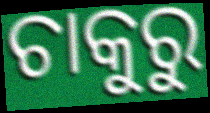
ଚାକୁରୁ